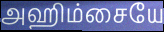
அஹிம்சையே